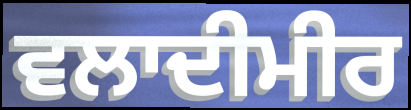
ਵਲਾਦੀਮੀਰ